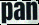
pan